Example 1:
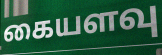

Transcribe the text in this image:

கையளவு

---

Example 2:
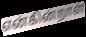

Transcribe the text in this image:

என்கின்றாள்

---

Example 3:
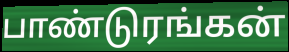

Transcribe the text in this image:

பாண்டுரங்கன்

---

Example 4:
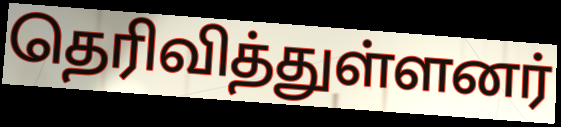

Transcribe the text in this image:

தெரிவித்துள்ளனர்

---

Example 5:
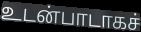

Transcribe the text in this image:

உடன்பாடாகச்